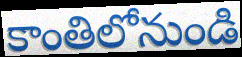
కాంతిలోనుండి